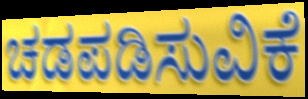
ಚಡಪಡಿಸುವಿಕೆ